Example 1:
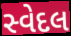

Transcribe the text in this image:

સ્વેદલ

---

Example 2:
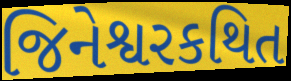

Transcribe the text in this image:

જિનેશ્વરકથિત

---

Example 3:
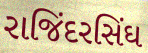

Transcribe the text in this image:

રાજિંદરસિંઘ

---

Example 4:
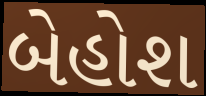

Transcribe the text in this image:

બેહોશ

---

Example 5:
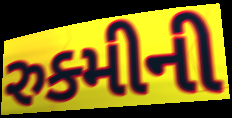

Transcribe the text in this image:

રુક્મીની